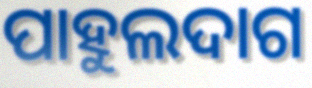
ପାହୁଲଦାଗ